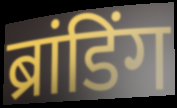
ब्रांडिंग